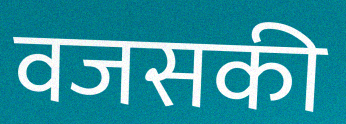
वजसकी